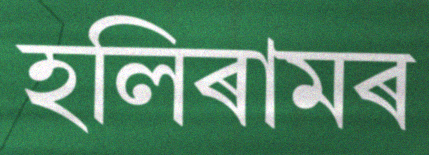
হলিৰামৰ